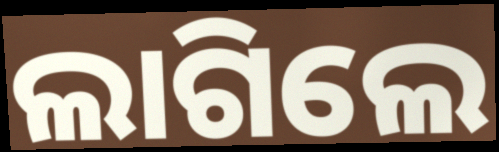
ଲାଗିଲେ